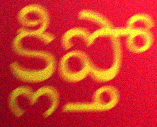
క్లిప్తో